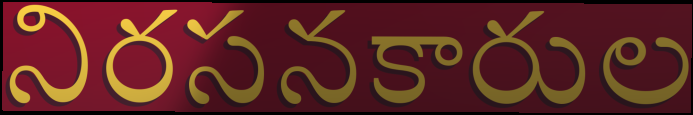
నిరసనకారుల